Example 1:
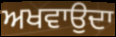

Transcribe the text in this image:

ਅਖਵਾਉਦਾ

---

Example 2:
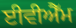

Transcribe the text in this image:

ਈਵੀਐੱਮ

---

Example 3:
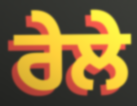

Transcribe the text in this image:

ਰੇਲੇ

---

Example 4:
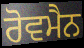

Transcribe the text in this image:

ਰੋਵਮੈਨ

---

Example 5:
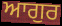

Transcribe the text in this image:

ਆਗੁਰ